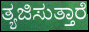
ತ್ಯಜಿಸುತ್ತಾರೆ